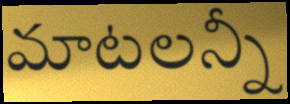
మాటలన్నీ